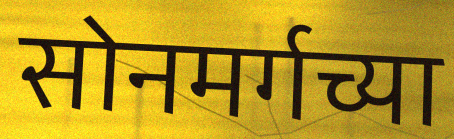
सोनमर्गच्या